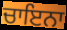
ਚਾਇਨਾ